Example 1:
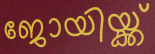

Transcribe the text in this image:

ജോയിയ്ക്ക്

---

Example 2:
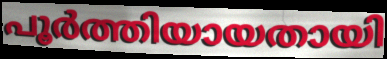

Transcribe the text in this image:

പൂർത്തിയായതായി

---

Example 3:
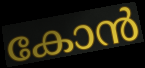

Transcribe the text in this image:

കോൻ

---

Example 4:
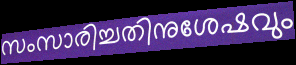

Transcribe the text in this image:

സംസാരിച്ചതിനുശേഷവും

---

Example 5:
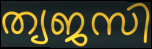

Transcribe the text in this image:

ത്യജസി